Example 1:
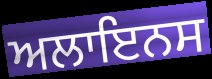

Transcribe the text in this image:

ਅਲਾਇਨਸ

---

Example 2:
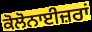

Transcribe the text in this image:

ਕੋਲੋਨਾਈਜ਼ਰਾਂ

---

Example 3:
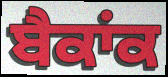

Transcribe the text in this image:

ਬੈਕਾਂਕ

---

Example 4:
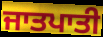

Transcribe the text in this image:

ਜਾਤਪਾਤੀ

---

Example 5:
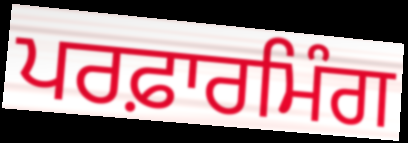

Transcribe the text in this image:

ਪਰਫ਼ਾਰਮਿੰਗ